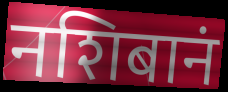
नशिबानं